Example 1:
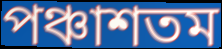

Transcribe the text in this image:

পঞ্চাশতম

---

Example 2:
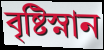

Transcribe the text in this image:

বৃষ্টিস্নান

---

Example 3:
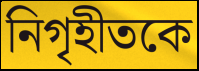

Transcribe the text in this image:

নিগৃহীতকে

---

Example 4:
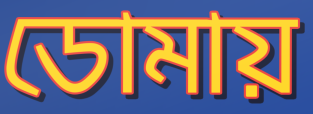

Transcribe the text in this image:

ডোমায়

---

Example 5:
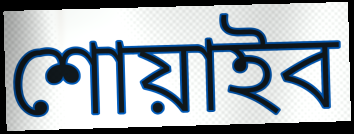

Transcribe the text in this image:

শোয়াইব